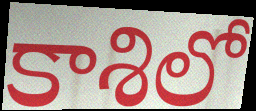
కాశిలో